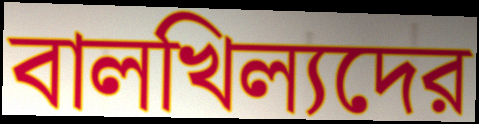
বালখিল্যদের